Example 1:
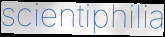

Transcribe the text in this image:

scientiphilia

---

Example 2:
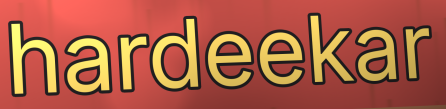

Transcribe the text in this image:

hardeekar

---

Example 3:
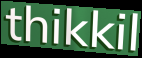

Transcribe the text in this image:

thikkil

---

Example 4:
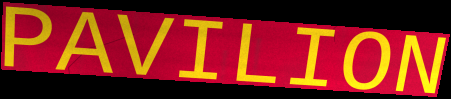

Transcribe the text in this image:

PAVILION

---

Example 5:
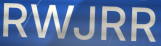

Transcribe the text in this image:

RWJRR